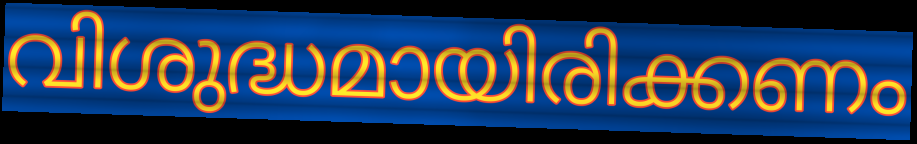
വിശുദ്ധമായിരിക്കണം